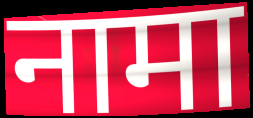
नामा